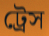
ট্রেস